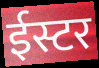
ईस्टर